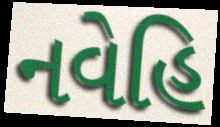
નવેહિ